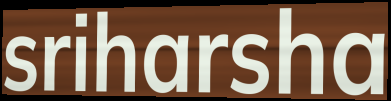
sriharsha